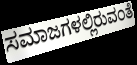
ಸಮಾಜಗಳಲ್ಲಿರುವಂತೆ